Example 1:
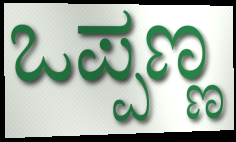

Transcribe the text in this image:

ಒಪ್ಪಣ್ಣ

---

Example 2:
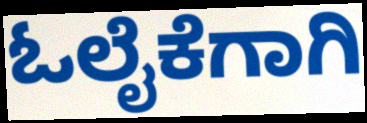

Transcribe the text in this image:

ಓಲೈಕೆಗಾಗಿ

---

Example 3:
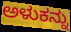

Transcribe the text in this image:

ಅಳುಕನ್ನು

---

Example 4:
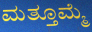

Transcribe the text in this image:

ಮತ್ತೂಮ್ಮೆ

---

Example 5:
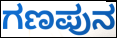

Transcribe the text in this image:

ಗಣಪುನ